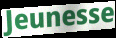
Jeunesse